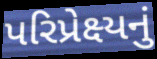
પરિપ્રેક્ષ્યનું